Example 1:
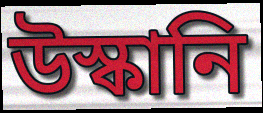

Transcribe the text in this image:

উস্কানি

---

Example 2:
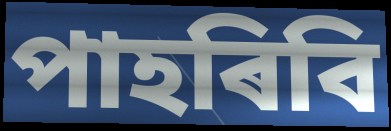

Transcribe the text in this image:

পাহৰিবি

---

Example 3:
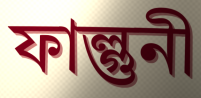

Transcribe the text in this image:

ফাল্গুনী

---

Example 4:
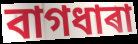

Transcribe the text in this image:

বাগধাৰা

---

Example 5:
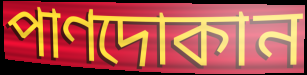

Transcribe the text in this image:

পাণদোকান